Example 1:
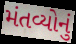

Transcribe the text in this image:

મંતવ્યોનું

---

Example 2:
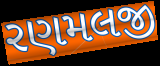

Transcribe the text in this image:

રણમલજી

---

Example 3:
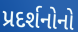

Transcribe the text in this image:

પ્રદર્શનોનો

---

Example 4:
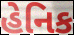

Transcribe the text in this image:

હેનિક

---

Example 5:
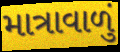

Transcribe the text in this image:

માત્રાવાળું